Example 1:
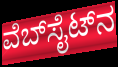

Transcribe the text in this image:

ವೆಬ್‍ಸೈಟ್‍ನ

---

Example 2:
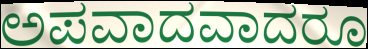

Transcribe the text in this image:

ಅಪವಾದವಾದರೂ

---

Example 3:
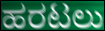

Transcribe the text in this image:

ಹರಟಲು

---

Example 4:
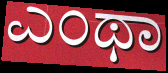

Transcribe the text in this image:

ಎಂಥಾ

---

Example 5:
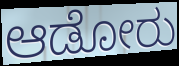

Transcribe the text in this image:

ಆಡೋರು